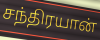
சந்திரயான்